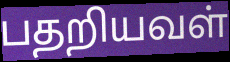
பதறியவள்